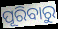
ପୂରିବାରୁ